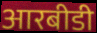
आरबीडी